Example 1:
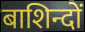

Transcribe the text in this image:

बाशिन्दों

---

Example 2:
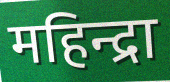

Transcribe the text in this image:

महिन्द्रा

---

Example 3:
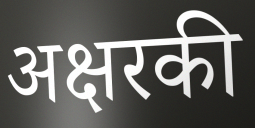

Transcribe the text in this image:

अक्षरकी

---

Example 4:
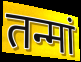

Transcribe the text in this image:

तन्मां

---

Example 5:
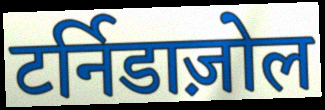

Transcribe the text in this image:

टर्निडाज़ोल